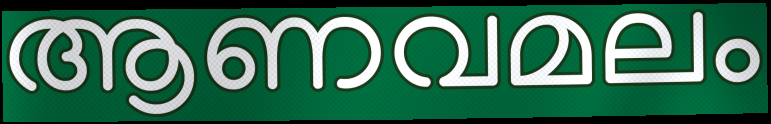
ആണവമലം